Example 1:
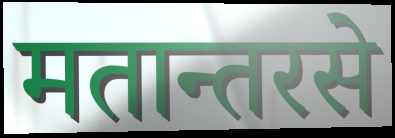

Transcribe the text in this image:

मतान्तरसे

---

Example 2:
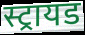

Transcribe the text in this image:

स्ट्रायड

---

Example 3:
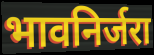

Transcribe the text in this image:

भावनिर्जरा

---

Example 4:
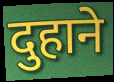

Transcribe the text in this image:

दुहाने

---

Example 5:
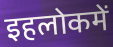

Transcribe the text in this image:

इहलोकमें